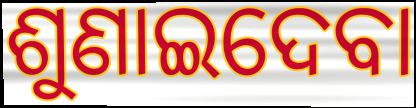
ଶୁଣାଇଦେବା